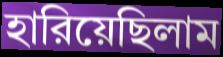
হারিয়েছিলাম